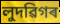
লুদৱিগৰ